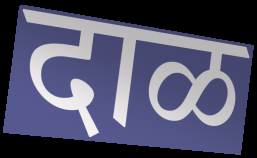
दाळ